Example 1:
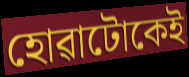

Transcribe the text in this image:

হোৱাটোকেই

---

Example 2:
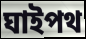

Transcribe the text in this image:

ঘাইপথ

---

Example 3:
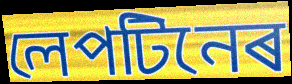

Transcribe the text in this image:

লেপটিনেৰ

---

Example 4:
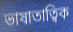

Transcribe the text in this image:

ভাষাতাত্বিক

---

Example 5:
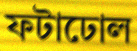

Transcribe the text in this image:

ফটাঢোল